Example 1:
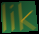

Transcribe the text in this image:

lik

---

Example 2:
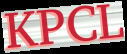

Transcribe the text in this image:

KPCL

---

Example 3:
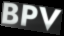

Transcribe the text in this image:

BPV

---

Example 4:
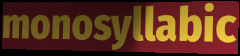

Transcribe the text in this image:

monosyllabic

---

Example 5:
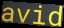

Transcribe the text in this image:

avid